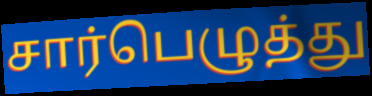
சார்பெழுத்து